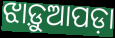
ଝାଡ଼ୁଆପଡ଼ା